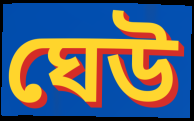
ঘেউ